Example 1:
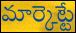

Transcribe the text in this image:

మార్కెట్టే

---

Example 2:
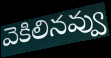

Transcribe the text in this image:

వెకిలినవ్వు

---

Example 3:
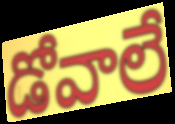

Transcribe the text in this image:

డోవాలే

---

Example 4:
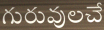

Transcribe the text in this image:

గురువులచే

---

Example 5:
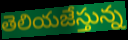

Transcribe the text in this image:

తెలియజేస్తున్న